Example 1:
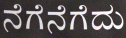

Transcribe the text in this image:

ನೆಗೆನೆಗೆದು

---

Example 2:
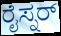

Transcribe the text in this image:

ರೈಸ್ನರ್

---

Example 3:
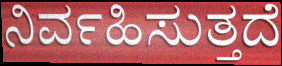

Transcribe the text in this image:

ನಿರ್ವಹಿಸುತ್ತದೆ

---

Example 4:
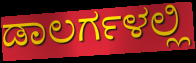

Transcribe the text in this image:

ಡಾಲರ್ಗಳಲ್ಲಿ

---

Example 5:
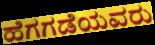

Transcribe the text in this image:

ಹೆಗಗಡೆಯವರು